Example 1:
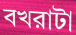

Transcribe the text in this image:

বখরাটা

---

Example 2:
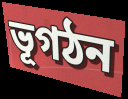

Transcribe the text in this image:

ভূগঠন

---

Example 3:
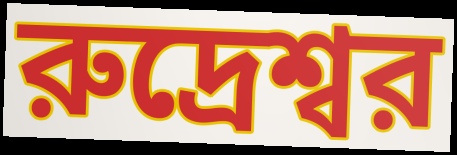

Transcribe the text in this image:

রুদ্রেশ্বর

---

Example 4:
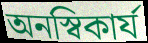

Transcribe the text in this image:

অনস্বিকার্য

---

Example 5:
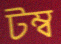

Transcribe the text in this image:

টম্ব